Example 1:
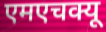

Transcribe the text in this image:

एमएचक्यू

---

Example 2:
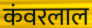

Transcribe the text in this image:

कंवरलाल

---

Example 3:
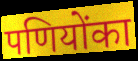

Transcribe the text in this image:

पणियोंका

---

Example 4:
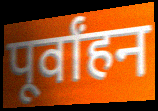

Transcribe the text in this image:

पूर्वांहन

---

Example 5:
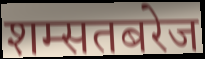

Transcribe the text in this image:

शम्सतबरेज